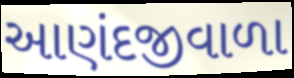
આણંદજીવાળા